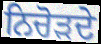
ਨਿਚੋੜਦੇ